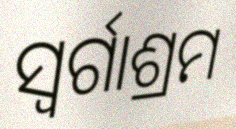
ସ୍ୱର୍ଗାଶ୍ରମ